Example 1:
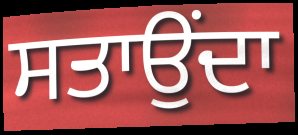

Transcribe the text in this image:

ਸਤਾਉਂਦਾ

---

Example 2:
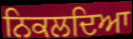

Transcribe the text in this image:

ਨਿਕਲਦਿਆ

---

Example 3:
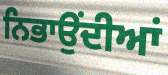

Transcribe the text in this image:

ਨਿਭਾਉਂਦੀਆਂ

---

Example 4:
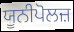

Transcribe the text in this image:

ਯੂਨੀਪੋਲਜ਼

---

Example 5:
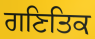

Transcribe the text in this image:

ਗਣਿਤਿਕ